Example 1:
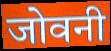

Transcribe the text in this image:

जोवनी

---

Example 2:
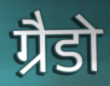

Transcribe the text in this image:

ग्रैडो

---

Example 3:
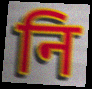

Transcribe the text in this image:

नि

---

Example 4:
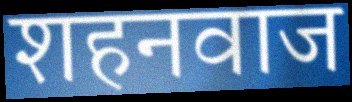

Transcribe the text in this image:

शहनवाज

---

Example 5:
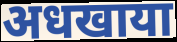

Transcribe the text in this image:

अधखाया